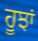
ਹੂਝਾਂ